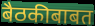
बैठकीबाबत